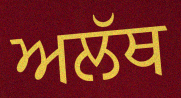
ਅਲੱਥ